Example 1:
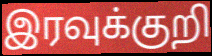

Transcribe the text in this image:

இரவுக்குறி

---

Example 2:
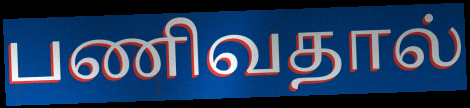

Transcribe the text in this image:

பணிவதால்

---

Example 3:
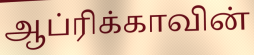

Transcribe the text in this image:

ஆப்ரிக்காவின்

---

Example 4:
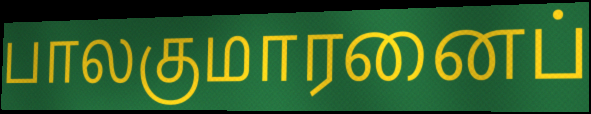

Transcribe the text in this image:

பாலகுமாரனைப்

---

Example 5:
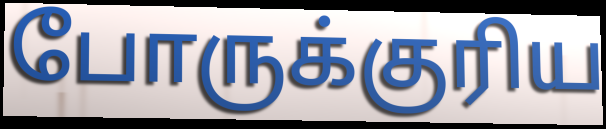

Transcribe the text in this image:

போருக்குரிய